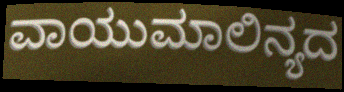
ವಾಯುಮಾಲಿನ್ಯದ